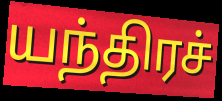
யந்திரச்